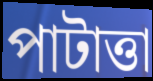
পাটাত্তা